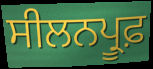
ਸੀਲਨਪ੍ਰੂਫ਼